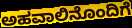
ಅಹವಾಲಿನೊಂದಿಗೆ